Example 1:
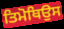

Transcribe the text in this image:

ਤਿਮੋਥਿਉਸ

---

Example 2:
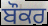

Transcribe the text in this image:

ਬੌਕਰ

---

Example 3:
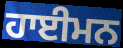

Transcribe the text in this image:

ਹਾਈਮਨ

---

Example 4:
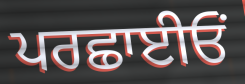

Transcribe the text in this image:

ਪਰਛਾਈਓਂ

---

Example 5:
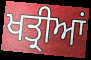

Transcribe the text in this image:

ਖਤ੍ਰੀਆਂ